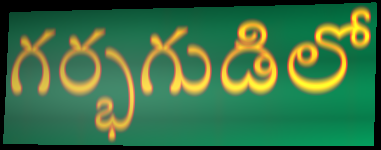
గర్భగుడిలో